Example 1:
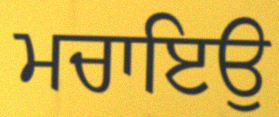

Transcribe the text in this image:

ਮਚਾਇਉ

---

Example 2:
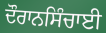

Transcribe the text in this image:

ਦੌਰਾਨਸਿੰਚਾਈ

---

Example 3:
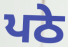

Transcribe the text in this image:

ਪਠੇ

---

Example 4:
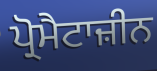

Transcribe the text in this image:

ਪ੍ਰੋਮੈਟਾਜ਼ੀਨ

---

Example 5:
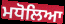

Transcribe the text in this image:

ਮਧੋਲਿਆ